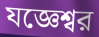
যজ্ঞেশ্বর